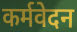
कर्मवेदन